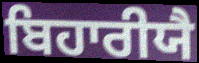
ਬਿਹਾਰੀਯੈ